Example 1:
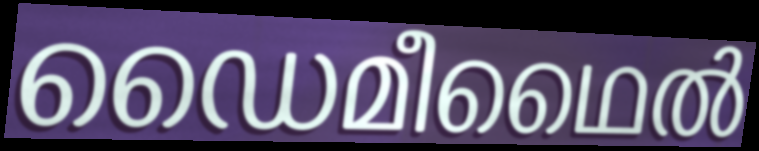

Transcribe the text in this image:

ഡൈമീഥൈൽ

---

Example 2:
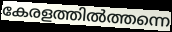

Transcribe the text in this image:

കേരളത്തിൽത്തന്നെ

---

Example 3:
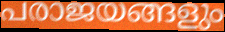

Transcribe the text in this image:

പരാജയങ്ങളും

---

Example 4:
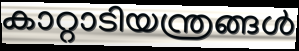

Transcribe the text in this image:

കാറ്റാടിയന്ത്രങ്ങൾ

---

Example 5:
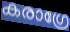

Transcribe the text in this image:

കരാഗ്രേ